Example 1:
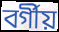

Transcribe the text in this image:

বৰ্গীয়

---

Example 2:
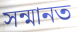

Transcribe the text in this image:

সন্মানত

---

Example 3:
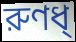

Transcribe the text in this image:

ৰুণধ্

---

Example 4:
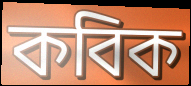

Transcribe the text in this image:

কবিক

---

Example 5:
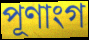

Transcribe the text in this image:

পূণাংগ